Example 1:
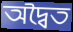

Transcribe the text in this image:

অদ্বৈত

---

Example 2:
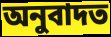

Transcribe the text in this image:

অনুবাদত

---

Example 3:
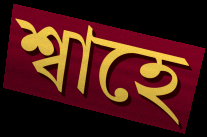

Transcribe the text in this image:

শ্বাহে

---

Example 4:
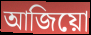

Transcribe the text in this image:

আজিয়ো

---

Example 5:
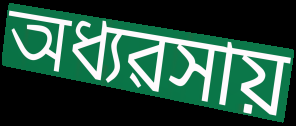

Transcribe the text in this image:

অধ্যৱসায়